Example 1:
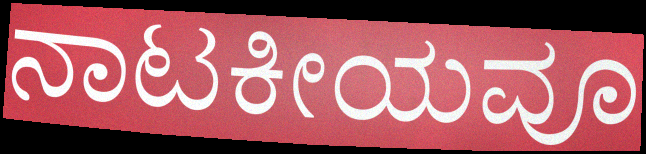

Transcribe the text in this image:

ನಾಟಕೀಯವೂ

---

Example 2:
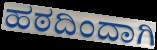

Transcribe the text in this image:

ಹಠದಿಂದಾಗಿ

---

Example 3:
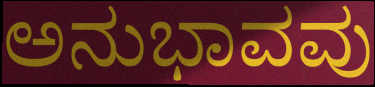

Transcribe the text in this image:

ಅನುಭಾವವು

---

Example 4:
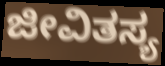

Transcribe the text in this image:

ಜೀವಿತಸ್ಯ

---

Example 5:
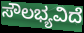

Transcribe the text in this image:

ಸೌಲಭ್ಯವಿದೆ